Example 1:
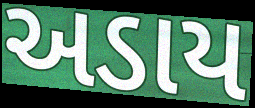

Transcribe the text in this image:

અડાય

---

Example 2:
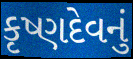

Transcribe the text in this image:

કૃષ્ણદેવનું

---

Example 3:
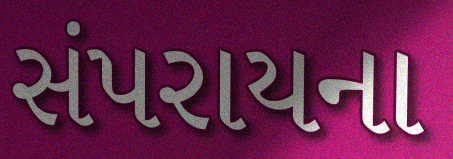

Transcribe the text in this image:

સંપરાયના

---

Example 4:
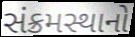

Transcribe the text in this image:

સંક્રમસ્થાનો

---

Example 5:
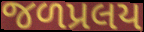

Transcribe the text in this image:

જળપ્રલય